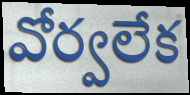
వోర్వలేక